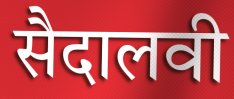
सैदालवी